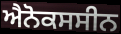
ਐਨੋਕਸਸੀਨ